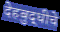
देहबुद्धीचे